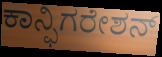
ಕಾನ್ಫಿಗರೇಶನ್